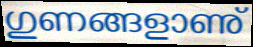
ഗുണങ്ങളാണു്